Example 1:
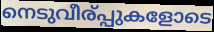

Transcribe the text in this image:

നെടുവീര്പ്പുകളോടെ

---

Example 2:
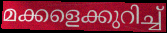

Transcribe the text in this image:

മക്കളെക്കുറിച്ച്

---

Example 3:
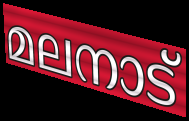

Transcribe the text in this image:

മലനാട്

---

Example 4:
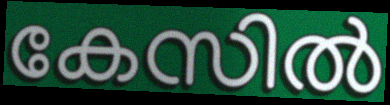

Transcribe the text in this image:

കേസിൽ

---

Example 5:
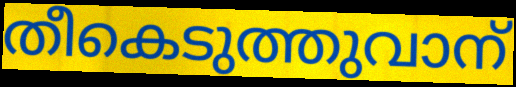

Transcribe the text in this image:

തീകെടുത്തുവാന്